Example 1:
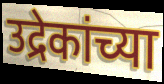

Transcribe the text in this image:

उद्रेकांच्या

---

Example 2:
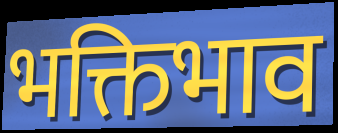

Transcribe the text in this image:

भक्तिभाव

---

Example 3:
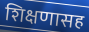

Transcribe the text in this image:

शिक्षणासह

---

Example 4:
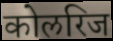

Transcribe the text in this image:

कोलरिज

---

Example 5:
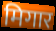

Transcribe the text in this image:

मिगार